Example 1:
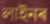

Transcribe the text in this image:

লাইনৰ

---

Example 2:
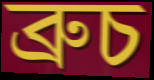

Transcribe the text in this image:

ব্ৰুচ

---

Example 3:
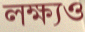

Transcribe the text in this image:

লক্ষ্যও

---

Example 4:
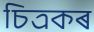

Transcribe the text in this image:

চিত্ৰকৰ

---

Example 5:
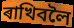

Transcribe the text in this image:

ৰাখিবলৈ